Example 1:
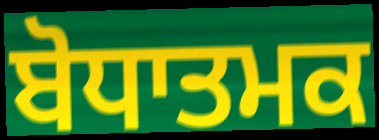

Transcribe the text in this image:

ਬੋਧਾਤਮਕ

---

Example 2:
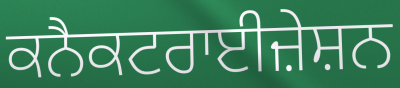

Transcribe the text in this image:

ਕਨੈਕਟਰਾਈਜ਼ੇਸ਼ਨ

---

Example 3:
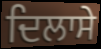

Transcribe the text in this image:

ਦਿਲਾਸੇ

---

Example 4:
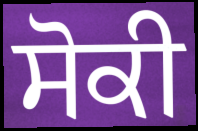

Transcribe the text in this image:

ਸੋਕੀ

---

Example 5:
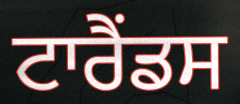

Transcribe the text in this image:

ਟਾਰੈਂਡਸ